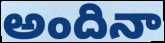
అందినా